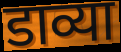
डाव्या